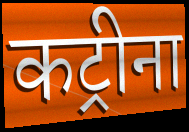
कट्रीना